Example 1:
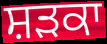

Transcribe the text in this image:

ਸ਼ੜਕਾ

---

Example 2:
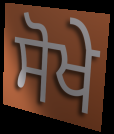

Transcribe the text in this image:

ਸੋਖੇ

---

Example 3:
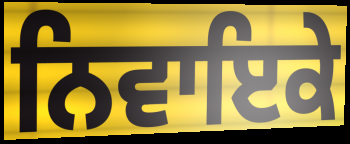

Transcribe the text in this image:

ਨਿਵਾਇਕੇ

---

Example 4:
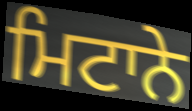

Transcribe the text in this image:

ਮਿਟਾਨੇ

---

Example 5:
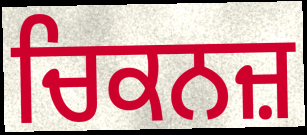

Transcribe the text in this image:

ਚਿਕਨਜ਼